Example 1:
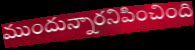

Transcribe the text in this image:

ముందున్నారనిపించింది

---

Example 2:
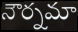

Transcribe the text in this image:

నౌర్నమా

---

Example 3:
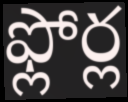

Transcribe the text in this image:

ఫ్లోర్ల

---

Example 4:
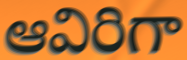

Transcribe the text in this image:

ఆవిరిగా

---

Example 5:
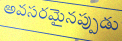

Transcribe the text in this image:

అవసరమైనప్పుడు